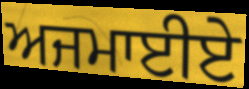
ਅਜਮਾਈਏ